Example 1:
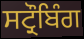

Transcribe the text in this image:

ਸਟ੍ਰੌਬਿੰਗ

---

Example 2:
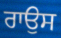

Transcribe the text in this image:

ਰਾਉਸ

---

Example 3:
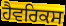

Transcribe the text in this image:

ਹੈਵਰਿਕਸ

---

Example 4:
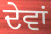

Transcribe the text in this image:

ਦੇਵਾਂ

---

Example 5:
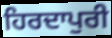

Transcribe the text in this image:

ਹਿਰਦਾਪੁਰੀ